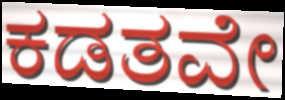
ಕಡತವೇ